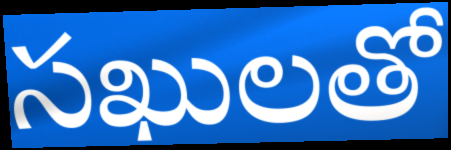
సఖులతో